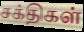
சக்திகள்